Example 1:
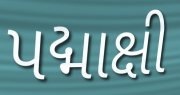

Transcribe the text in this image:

પદ્માક્ષી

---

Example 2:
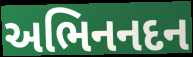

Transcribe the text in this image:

અભિનનદન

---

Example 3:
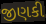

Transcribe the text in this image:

જીણકી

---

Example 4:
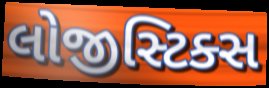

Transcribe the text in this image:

લોજીસ્ટિક્સ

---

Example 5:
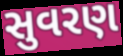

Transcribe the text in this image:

સુવરણ